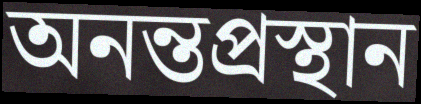
অনন্তপ্রস্থান